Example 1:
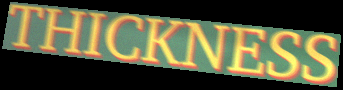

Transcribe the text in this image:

THICKNESS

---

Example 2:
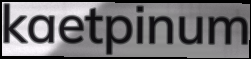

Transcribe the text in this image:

kaetpinum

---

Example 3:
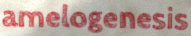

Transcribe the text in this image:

amelogenesis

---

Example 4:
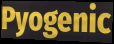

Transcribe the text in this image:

Pyogenic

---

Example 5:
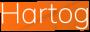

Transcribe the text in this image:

Hartog